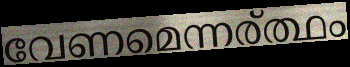
വേണമെന്നര്ത്ഥം